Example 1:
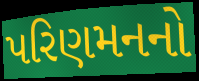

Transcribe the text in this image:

પરિણમનનો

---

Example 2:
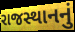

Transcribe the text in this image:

રાજસ્થાનનું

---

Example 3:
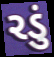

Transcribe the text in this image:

રડું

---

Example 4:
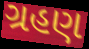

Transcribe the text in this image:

ગ્રહણ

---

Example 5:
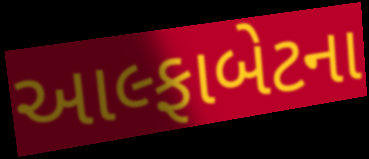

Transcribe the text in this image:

આલ્ફાબેટના